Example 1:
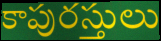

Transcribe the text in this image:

కాపురస్తులు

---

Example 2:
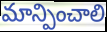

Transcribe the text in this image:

మాన్పించాలి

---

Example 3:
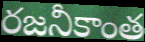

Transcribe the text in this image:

రజనీకాంత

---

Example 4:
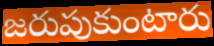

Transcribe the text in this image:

జరుపుకుంటారు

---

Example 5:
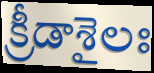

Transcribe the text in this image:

క్రీడాశైలః